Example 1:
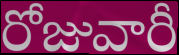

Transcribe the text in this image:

రోజువారీ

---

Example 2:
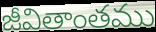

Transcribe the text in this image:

జీవితాంతము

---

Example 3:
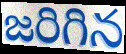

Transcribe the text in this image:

జరిగిన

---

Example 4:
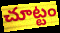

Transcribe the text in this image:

చూట్టం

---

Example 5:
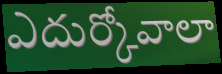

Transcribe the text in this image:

ఎదుర్కోవాలా